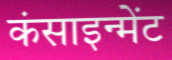
कंसाइन्मेंट